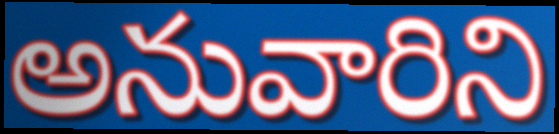
అనువారిని